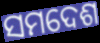
ସମଦେଶ